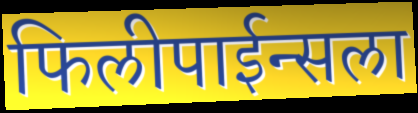
फिलीपाईन्सला